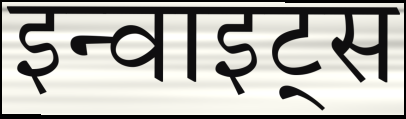
इन्वाइट्स